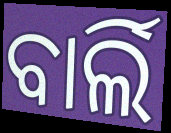
ବାର୍ଲି